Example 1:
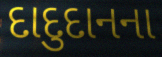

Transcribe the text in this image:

દાદુદાનના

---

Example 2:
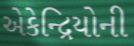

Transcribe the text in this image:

એકેન્દ્રિયોની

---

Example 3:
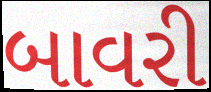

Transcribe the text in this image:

બાવરી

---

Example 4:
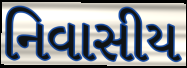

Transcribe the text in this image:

નિવાસીય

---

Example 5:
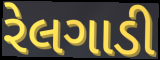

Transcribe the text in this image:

રેલગાડી